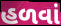
હળવાં